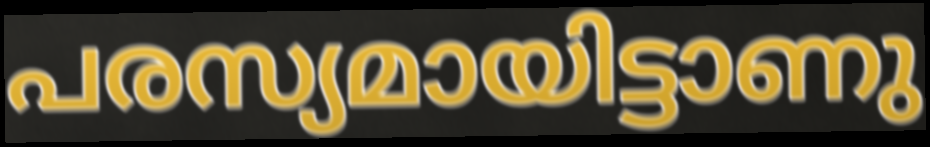
പരസ്യമായിട്ടാണു